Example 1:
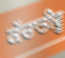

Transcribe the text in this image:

ਕੱਚਾਤੀਵੂ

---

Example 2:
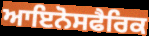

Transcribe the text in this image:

ਆਇਨੋਸਫੈਰਿਕ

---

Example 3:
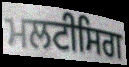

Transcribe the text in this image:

ਮਲਟੀਸਿਗ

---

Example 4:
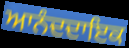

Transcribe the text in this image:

ਆਨੰਦਦਾਇਕ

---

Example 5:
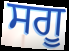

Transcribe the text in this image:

ਸਗੂ